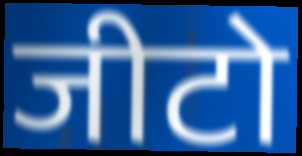
जीटो